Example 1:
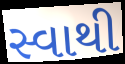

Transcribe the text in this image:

સ્વાથી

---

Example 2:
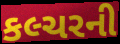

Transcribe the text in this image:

કલ્ચરની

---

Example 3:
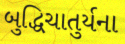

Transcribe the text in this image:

બુદ્ધિચાતુર્યના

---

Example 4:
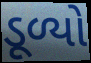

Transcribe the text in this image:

ડૂળ્યો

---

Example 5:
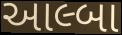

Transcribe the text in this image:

આલ્બા